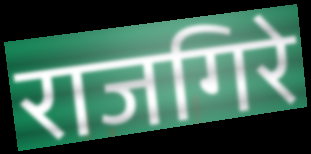
राजगिरे